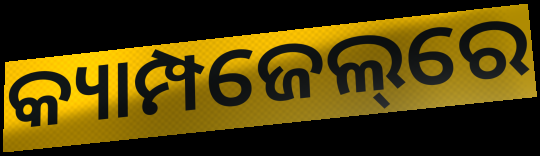
କ୍ୟାମ୍ପଜେଲ୍‌ରେ